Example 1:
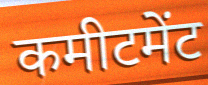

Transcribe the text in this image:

कमीटमेंट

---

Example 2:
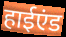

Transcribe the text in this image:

हाईएंड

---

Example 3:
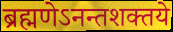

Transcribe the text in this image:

ब्रह्मणेऽनन्तशक्तये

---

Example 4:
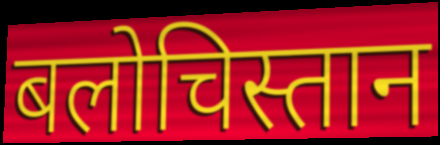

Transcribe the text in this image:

बलोचिस्तान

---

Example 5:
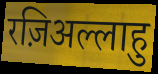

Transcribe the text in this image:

रज़िअल्लाहु